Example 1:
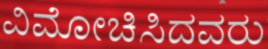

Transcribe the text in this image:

ವಿಮೋಚಿಸಿದವರು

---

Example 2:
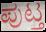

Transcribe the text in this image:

ಪುಟ್ತ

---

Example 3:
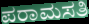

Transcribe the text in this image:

ಪರಾಮಸತಿ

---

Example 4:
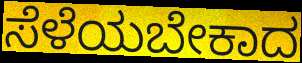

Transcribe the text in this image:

ಸೆಳೆಯಬೇಕಾದ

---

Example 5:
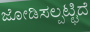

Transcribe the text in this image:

ಜೋಡಿಸಲ್ಪಟ್ಟಿದೆ